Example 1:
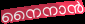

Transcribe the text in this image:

നൈനാൻ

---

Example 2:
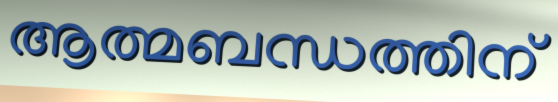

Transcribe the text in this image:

ആത്മബന്ധത്തിന്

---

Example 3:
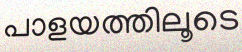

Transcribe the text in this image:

പാളയത്തിലൂടെ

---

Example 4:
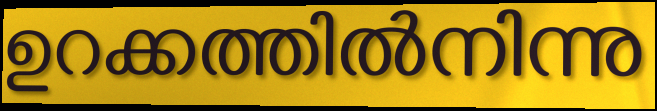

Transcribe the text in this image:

ഉറക്കത്തിൽനിന്നു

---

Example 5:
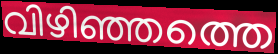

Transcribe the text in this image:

വിഴിഞ്ഞത്തെ